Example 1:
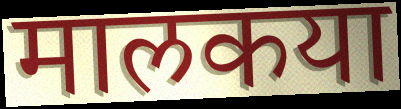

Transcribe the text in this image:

मालकया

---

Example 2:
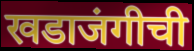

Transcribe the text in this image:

खडाजंगीची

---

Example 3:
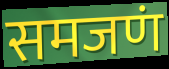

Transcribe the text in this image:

समजणं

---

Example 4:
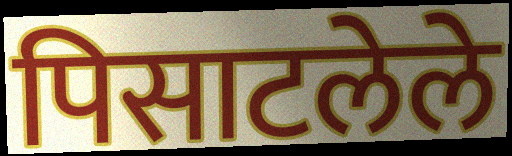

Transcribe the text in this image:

पिसाटलेले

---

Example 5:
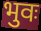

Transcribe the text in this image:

भुवः